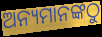
ଅନ୍ୟମାନଙ୍କଠୁ